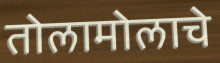
तोलामोलाचे